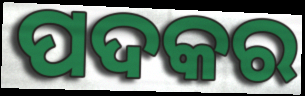
ପଦକର